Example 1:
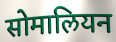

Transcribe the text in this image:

सोमालियन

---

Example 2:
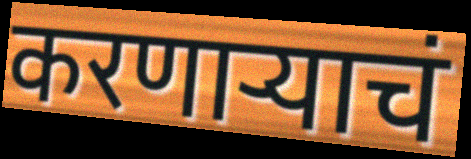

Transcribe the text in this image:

करणाऱ्याचं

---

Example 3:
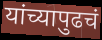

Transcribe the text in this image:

यांच्यापुढचं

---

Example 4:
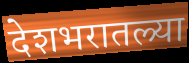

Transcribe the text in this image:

देशभरातल्या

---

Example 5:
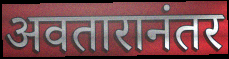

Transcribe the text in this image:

अवतारानंतर